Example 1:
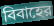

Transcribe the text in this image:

বিবাহের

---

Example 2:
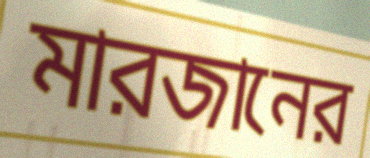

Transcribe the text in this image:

মারজানের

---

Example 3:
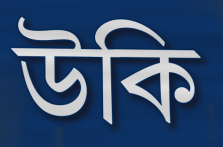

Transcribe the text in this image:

উকি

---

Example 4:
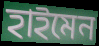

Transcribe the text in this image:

হাইমেন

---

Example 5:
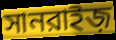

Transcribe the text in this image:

সানরাইজ়